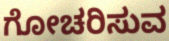
ಗೋಚರಿಸುವ